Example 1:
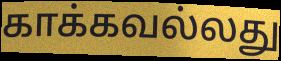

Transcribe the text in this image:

காக்கவல்லது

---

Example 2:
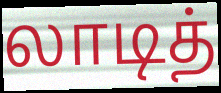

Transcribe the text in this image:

லாடித்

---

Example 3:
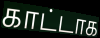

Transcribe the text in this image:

காட்டாக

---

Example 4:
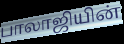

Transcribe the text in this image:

பாலாஜியின்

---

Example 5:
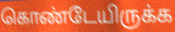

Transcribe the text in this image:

கொண்டேயிருக்க